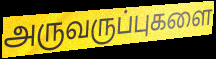
அருவருப்புகளை